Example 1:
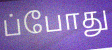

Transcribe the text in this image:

ப்போது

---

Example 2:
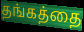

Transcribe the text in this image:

தங்கத்தை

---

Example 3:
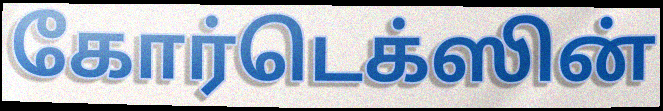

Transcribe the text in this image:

கோர்டெக்ஸின்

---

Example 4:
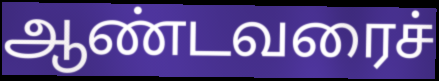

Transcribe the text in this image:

ஆண்டவரைச்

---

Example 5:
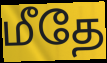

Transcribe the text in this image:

மீதே